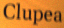
Clupea